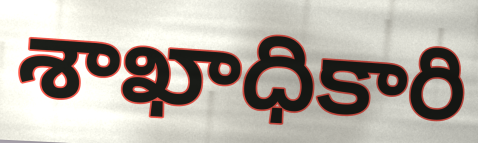
శాఖాధికారి